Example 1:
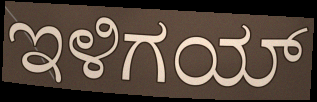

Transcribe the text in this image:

ಇಳಿಗಯ್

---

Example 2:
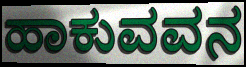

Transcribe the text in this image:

ಹಾಕುವವನ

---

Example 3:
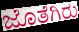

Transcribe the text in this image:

ಜೊತೆಗಿರು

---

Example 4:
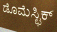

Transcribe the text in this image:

ಡೊಮೆಸ್ಟಿಕ್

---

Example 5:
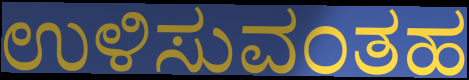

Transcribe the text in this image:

ಉಳಿಸುವಂತಹ